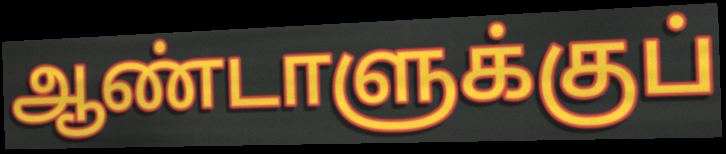
ஆண்டாளுக்குப்